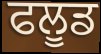
ਫਲੂਡ